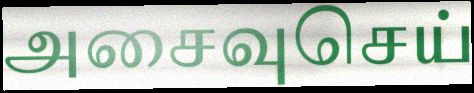
அசைவுசெய்